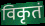
विकृतं